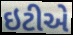
ઇટીએ